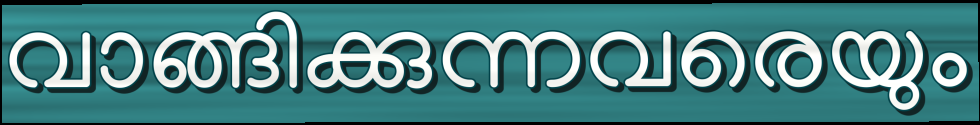
വാങ്ങിക്കുന്നവരെയും